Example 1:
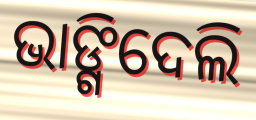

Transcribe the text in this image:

ଭାଙ୍ଗିଦେଲି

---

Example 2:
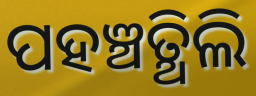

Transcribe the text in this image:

ପହଞ୍ଚତ୍ଥିଲି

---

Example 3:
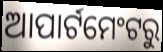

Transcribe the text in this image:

ଆପାର୍ଟମେଂଟରୁ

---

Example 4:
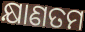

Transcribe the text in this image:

କ୍ଷାଣତମ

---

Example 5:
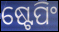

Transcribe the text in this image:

ଷ୍ଟେପିଂ